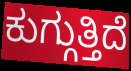
ಕುಗ್ಗುತ್ತಿದೆ